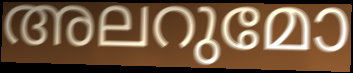
അലറുമോ